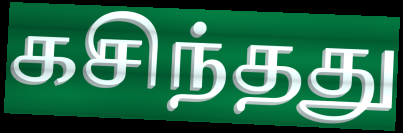
கசிந்தது